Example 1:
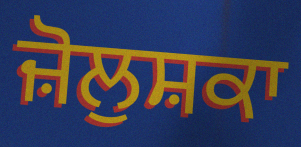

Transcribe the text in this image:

ਜ਼ੋਲੁਸ਼ਕਾ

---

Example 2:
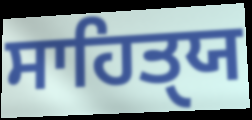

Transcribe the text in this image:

ਸਾਹਿਤੑਯ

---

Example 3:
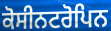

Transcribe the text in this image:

ਕੋਸੀਨਟਰੋਪਿਨ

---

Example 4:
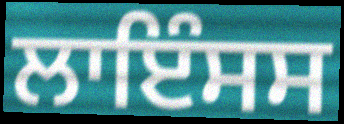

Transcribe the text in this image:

ਲਾਇੰਸਸ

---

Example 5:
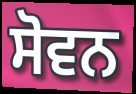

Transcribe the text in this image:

ਸੋਵਨ